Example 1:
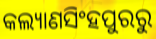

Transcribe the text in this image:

କଲ୍ୟାଣସିଂହପୁରରୁ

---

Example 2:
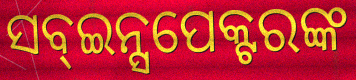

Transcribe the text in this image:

ସବ୍ଇନ୍ସପେକ୍ଟରଙ୍କ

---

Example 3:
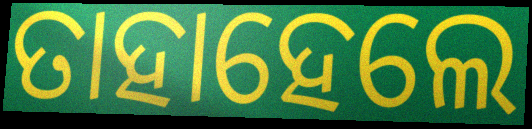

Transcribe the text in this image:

ତାହାହେଲେ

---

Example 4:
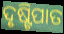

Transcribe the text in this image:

ଦୃଷ୍ଟିପାତ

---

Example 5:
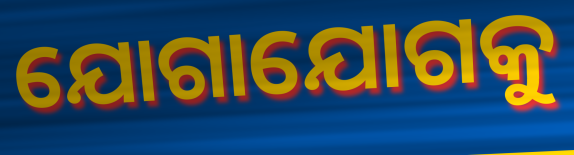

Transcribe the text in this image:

ଯୋଗାଯୋଗକୁ